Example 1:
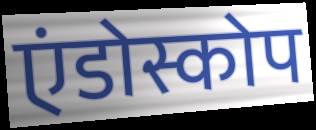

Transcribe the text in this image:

एंडोस्कोप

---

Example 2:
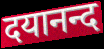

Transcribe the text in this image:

दयानन्द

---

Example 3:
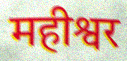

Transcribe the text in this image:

महीश्वर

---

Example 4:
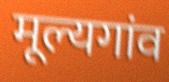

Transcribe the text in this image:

मूल्यगांव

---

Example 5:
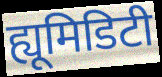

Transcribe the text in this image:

ह्यूमिडिटी